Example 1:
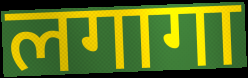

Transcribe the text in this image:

लगागा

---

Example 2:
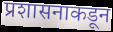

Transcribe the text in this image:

प्रशासनाकडून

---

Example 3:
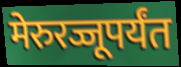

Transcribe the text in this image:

मेरुरज्जूपर्यंत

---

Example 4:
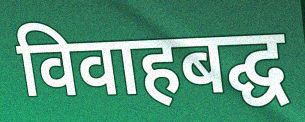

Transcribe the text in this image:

विवाहबद्घ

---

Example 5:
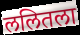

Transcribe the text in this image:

ललितला